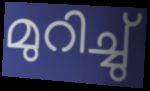
മുറിച്ചു്